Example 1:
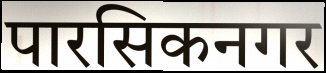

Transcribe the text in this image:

पारसिकनगर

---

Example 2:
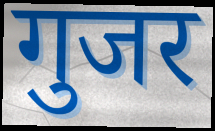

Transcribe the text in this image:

गुजर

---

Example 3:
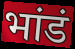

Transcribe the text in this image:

भांडं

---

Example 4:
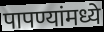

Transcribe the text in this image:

पापण्यांमध्ये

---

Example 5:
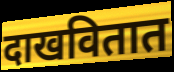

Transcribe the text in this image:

दाखवितात